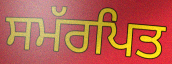
ਸਮੱਰਪਿਤ